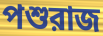
পশুরাজ